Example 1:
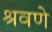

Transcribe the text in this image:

श्रवणे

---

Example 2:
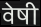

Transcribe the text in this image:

वेषी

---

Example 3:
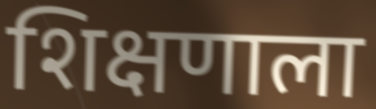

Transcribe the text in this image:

शिक्षणाला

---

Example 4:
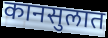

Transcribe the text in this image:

कानसुलात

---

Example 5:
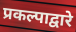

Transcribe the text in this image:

प्रकल्पाद्वारे